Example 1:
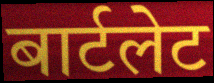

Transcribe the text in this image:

बार्टलेट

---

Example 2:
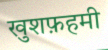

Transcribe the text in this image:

खुशफ़हमी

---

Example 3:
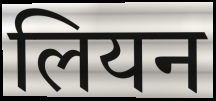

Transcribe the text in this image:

लियन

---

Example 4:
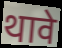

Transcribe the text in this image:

थावे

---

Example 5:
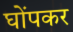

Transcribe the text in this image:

घोंपकर